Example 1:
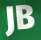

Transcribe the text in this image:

JB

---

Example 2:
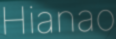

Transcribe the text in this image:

Hianao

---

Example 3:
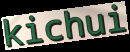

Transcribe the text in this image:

kichui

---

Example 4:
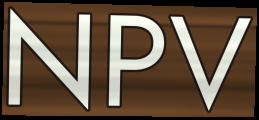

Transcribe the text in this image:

NPV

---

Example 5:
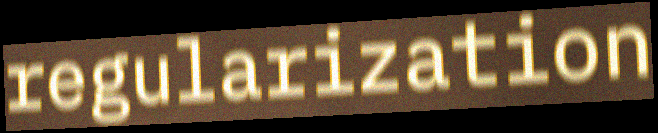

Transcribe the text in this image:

regularization